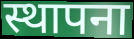
स्थापना